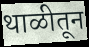
थाळीतून